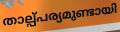
താല്പ്പര്യമുണ്ടായി